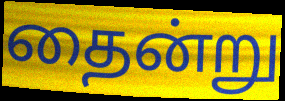
தைன்று